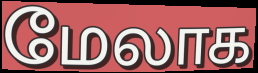
மேலாக